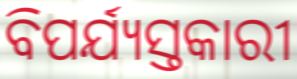
ବିପର୍ଯ୍ୟସ୍ତକାରୀ